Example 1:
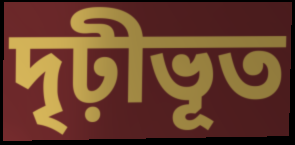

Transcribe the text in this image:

দৃঢ়ীভূত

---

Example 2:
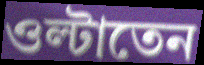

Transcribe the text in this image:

ওল্টাতেন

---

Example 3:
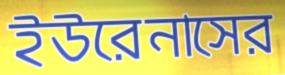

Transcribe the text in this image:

ইউরেনাসের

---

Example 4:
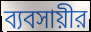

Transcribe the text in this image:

ব্যবসায়ীর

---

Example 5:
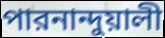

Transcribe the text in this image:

পারনান্দুয়ালী